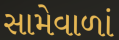
સામેવાળાં